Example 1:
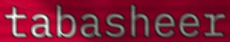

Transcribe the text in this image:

tabasheer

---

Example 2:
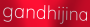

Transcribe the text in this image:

gandhijina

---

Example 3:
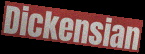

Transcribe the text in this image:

Dickensian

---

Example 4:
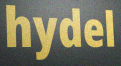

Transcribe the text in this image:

hydel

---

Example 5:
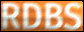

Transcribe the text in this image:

RDBS